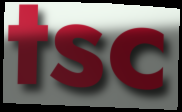
tsc